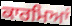
ਕਾਰਮਿਆਂ